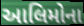
આલિમોના